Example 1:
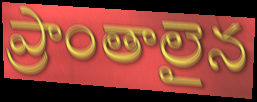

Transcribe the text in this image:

ప్రాంతాలైన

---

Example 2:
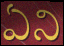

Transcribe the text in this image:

ఏని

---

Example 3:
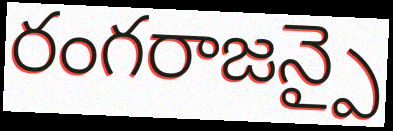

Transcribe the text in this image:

రంగరాజన్పై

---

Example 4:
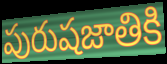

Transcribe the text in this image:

పురుషజాతికి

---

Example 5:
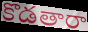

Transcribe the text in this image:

కొడతారా